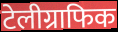
टेलीग्राफिक